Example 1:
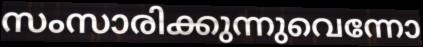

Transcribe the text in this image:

സംസാരിക്കുന്നുവെന്നോ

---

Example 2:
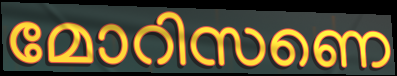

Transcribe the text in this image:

മോറിസണെ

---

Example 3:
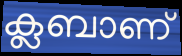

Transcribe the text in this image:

ക്ലബാണ്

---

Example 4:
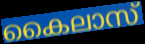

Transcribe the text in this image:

കൈലാസ്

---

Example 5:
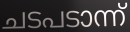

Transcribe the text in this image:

ചടപടാന്ന്